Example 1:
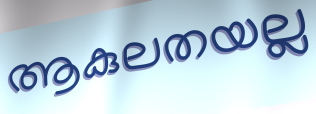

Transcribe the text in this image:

ആകുലതയല്ല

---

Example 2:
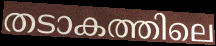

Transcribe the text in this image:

തടാകത്തിലെ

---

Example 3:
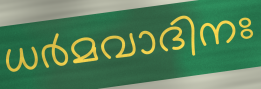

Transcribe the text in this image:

ധർമവാദിനഃ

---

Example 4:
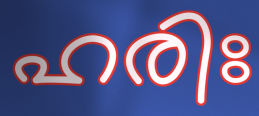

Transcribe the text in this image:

ഹരിഃ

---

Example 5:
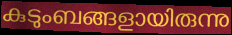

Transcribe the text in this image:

കുടുംബങ്ങളായിരുന്നു